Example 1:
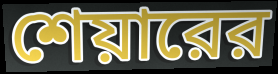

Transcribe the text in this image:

শেয়ারের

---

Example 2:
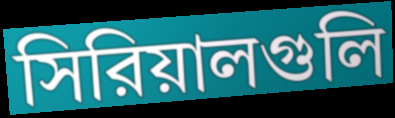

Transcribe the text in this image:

সিরিয়ালগুলি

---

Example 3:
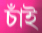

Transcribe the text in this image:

চাঁই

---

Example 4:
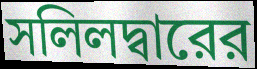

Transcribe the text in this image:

সলিলদ্বারের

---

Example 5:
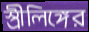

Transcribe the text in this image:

স্ত্রীলিঙ্গের